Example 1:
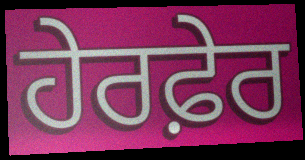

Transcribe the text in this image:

ਹੇਰਫ਼ੇਰ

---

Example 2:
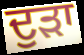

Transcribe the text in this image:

ਦੁੜਾ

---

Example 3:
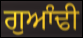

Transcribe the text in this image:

ਗੁਆੰਢੀ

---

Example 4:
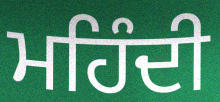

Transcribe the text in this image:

ਮਹਿੰਦੀ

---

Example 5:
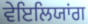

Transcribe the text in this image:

ਵੇਇਲਿਯਾਂਗ